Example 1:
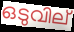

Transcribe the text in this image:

ഒടുവില്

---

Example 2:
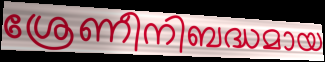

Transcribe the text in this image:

ശ്രേണീനിബദ്ധമായ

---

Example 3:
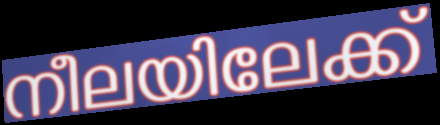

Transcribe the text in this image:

നീലയിലേക്ക്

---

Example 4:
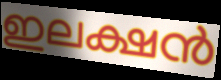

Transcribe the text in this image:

ഇലക്ഷൻ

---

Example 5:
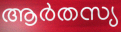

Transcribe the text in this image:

ആർതസ്യ